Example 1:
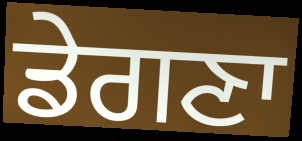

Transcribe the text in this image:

ਡੇਗਣਾ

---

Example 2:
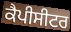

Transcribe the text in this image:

ਕੈਪੀਸੀਟਰ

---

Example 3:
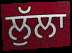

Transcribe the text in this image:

ਲੁੱਲਾ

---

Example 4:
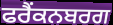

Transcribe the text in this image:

ਫਰੈਂਕਨਬਰਗ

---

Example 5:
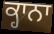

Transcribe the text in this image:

ਕ੍ਹਾਨਾ